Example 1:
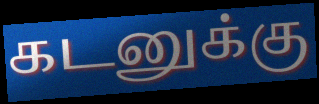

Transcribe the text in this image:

கடனுக்கு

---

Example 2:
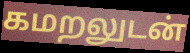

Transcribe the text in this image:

கமறலுடன்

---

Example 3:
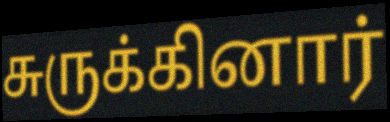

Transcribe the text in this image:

சுருக்கினார்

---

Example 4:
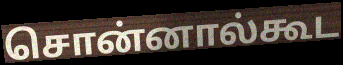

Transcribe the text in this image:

சொன்னால்கூட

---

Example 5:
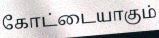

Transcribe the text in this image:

கோட்டையாகும்